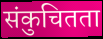
संकुचितता